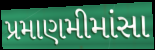
પ્રમાણમીમાંસા